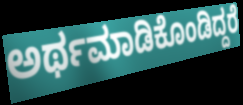
ಅರ್ಥಮಾಡಿಕೊಂಡಿದ್ದರೆ